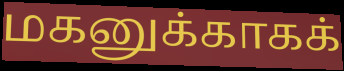
மகனுக்காகக்